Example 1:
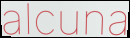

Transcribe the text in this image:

alcuna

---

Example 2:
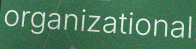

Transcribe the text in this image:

organizational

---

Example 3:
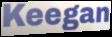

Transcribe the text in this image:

Keegan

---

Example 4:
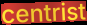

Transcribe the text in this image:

centrist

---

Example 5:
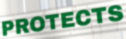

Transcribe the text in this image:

PROTECTS